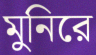
মুনিরে